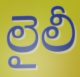
లైలీ